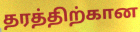
தரத்திற்கான